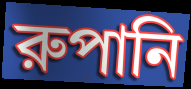
রুপানি